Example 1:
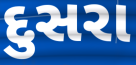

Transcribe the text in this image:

દુસરા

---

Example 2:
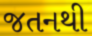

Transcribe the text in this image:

જતનથી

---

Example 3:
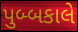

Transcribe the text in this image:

પુબ્બકાલે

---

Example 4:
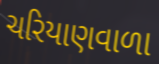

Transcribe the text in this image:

ચરિયાણવાળા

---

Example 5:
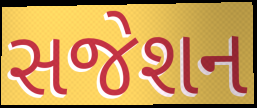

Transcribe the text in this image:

સજેશન